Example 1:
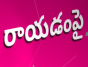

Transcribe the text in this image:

రాయడంపై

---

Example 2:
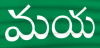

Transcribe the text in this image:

మయ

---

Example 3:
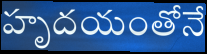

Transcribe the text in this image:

హృదయంతోనే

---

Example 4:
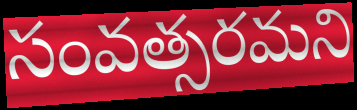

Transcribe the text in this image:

సంవత్సరమని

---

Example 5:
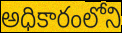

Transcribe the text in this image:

అధికారంలోని